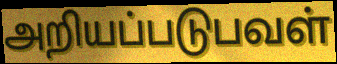
அறியப்படுபவள்